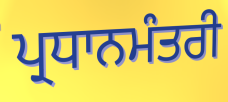
ਪ੍ਰਧਾਨਮੰਤਰੀ